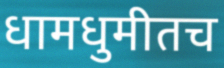
धामधुमीतच